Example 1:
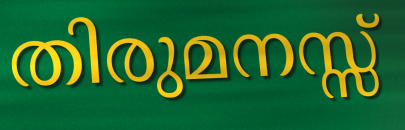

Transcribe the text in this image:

തിരുമനസ്സ്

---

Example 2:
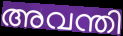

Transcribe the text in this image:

അവന്തി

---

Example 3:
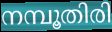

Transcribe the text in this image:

നമ്പൂതിരി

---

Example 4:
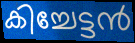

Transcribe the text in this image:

കിച്ചേട്ടൻ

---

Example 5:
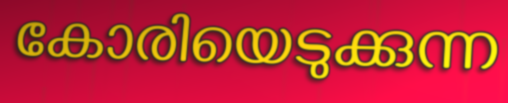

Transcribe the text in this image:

കോരിയെടുക്കുന്ന